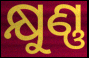
କ୍ଷୁଣ୍ଣ